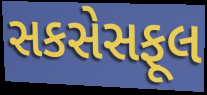
સકસેસફૂલ